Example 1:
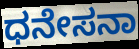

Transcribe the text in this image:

ಧನೇಸನಾ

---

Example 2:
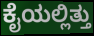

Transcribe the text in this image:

ಕೈಯಲ್ಲಿತ್ತು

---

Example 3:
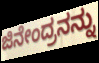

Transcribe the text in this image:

ಜಿನೇಂದ್ರನನ್ನು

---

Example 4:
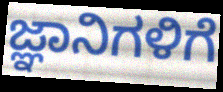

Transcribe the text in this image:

ಜ್ಞಾನಿಗಳಿಗೆ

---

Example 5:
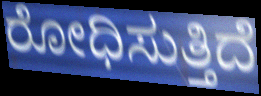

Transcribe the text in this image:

ರೋಧಿಸುತ್ತಿದೆ